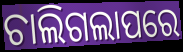
ଚାଲିଗଲାପରେ